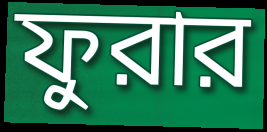
ফুরার